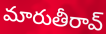
మారుతీరావ్